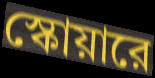
স্কোয়ারে